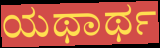
ಯಥಾರ್ಥ